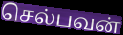
செல்பவன்